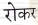
रोकर